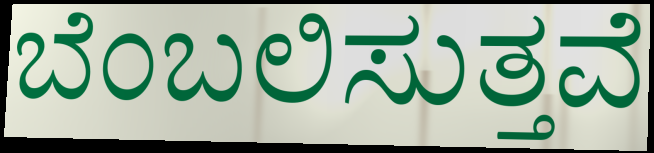
ಬೆಂಬಲಿಸುತ್ತವೆ